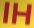
IH